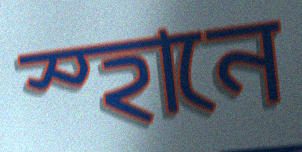
স্হানে